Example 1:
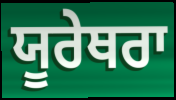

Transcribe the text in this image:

ਯੂਰੇਥਰਾ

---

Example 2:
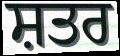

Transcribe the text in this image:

ਸ਼ਤਰ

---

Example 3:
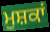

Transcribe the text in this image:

ਮੁਸ਼ਕਾਂ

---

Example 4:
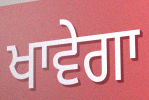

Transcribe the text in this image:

ਖਾਵੇਗਾ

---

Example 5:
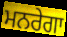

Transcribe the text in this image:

ਮਨਰੇਗਾ